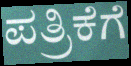
ಪತ್ರಿಕೆಗೆ